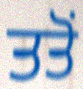
ਤਤੋਂ